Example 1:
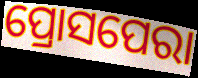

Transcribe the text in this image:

ପ୍ରୋସପେରା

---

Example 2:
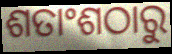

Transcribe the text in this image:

ଶତାଂଶଠାରୁ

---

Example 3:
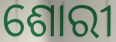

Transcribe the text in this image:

ଶୋରୀ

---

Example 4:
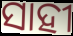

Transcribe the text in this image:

ସାହୀ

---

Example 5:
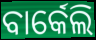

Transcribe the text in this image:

ବାର୍କେଲି